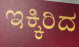
ಇಕ್ಕಿರಿದ